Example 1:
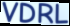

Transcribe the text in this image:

VDRL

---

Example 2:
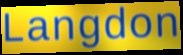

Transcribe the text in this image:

Langdon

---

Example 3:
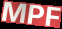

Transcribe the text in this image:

MPF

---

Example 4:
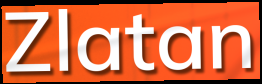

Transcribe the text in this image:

Zlatan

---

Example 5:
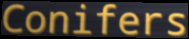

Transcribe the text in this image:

Conifers